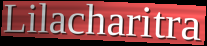
Lilacharitra